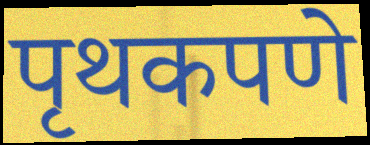
पृथकपणे